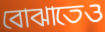
বোঝাতেও